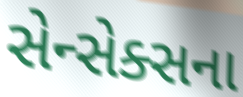
સેન્સેક્સના